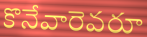
కొనేవారెవరూ